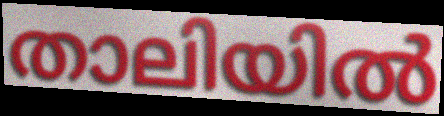
താലിയിൽ